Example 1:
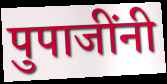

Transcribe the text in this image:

पुपाजींनी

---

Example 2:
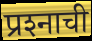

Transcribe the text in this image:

प्रश्‍नाची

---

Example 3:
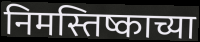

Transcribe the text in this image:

निमस्तिष्काच्या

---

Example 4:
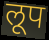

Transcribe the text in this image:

लूप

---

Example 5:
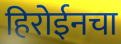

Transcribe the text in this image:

हिरोईनचा